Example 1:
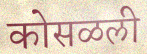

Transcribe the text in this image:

कोसळली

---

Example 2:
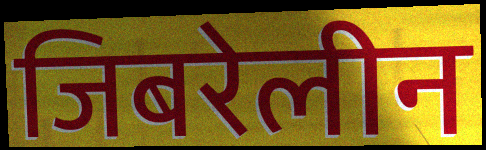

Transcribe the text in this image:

जिबरेलीन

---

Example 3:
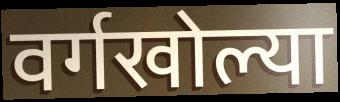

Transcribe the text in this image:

वर्गखोल्या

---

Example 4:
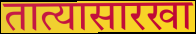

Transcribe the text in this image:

तात्यासारखा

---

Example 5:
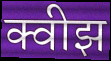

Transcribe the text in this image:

क्वीझ